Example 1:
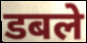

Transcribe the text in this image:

डबले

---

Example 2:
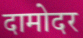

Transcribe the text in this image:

दामोदर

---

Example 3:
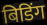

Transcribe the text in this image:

बिडिंग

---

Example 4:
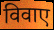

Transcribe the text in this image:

विवाए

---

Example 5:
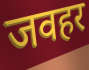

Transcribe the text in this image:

जवहर